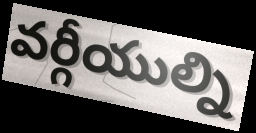
వర్గీయుల్ని